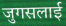
जुगसलाई